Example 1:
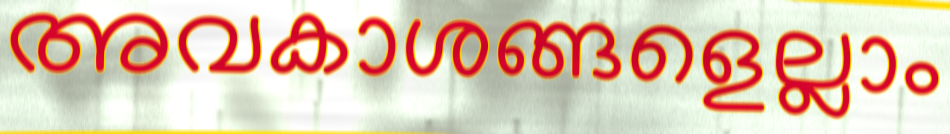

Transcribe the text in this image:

അവകാശങ്ങളെല്ലാം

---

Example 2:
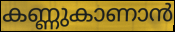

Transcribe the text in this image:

കണ്ണുകാണാൻ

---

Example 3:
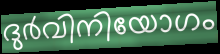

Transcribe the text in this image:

ദുർവിനിയോഗം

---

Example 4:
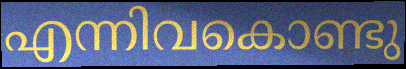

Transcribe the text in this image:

എന്നിവകൊണ്ടു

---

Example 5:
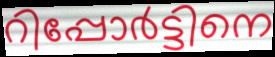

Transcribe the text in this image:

റിപ്പോർട്ടിനെ